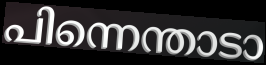
പിന്നെന്താടാ